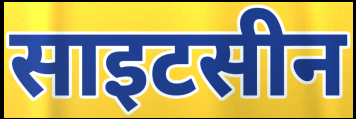
साइटसीन